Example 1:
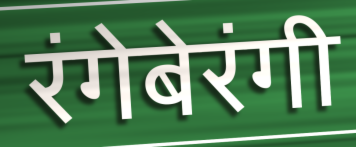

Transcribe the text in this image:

रंगेबेरंगी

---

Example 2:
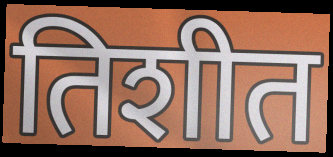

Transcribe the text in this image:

तिशीत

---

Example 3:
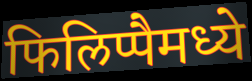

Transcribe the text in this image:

फिलिप्पैमध्ये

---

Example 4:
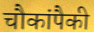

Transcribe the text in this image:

चौकांपैकी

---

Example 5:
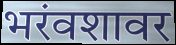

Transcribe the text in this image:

भरंवशावर